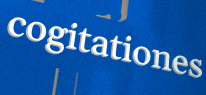
cogitationes